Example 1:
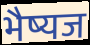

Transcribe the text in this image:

भैष्यज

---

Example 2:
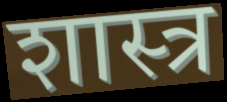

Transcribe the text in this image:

शास्त्र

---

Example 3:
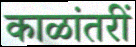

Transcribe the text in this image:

काळांतरीं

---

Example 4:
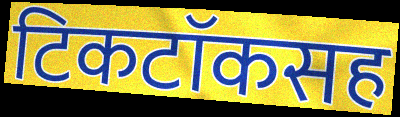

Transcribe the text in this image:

टिकटॉकसह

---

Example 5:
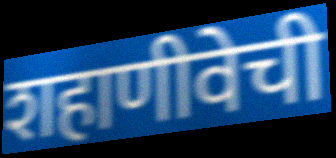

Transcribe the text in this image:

शहाणीवेची